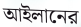
আইলানের